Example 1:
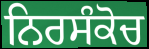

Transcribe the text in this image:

ਨਿਰਸੰਕੋਚ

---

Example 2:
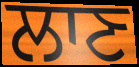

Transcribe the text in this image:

ਲਾਣ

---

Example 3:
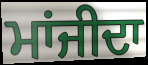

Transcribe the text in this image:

ਮਾਂਜੀਦਾ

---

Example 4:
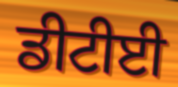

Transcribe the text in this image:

ਡੀਟੀਈ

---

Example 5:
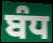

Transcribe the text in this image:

ਬੰਧ